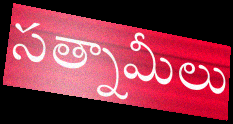
సత్నామీలు